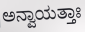
ಅನ್ವಾಯತ್ತಾಃ